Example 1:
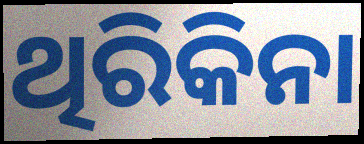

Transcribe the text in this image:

ଥିରିକିନା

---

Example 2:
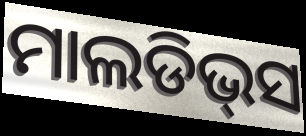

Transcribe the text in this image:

ମାଲଡିଭ୍‌ସ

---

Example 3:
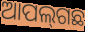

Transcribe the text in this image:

ଆପଲ୍‍ଗଛ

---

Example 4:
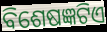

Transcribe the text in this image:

ବିଶେଷଜ୍ଞଟିଏ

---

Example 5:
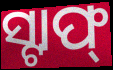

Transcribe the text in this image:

ସ୍ଟାଫ୍